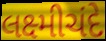
લક્ષ્મીચંદે